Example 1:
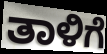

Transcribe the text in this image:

ತಾಳಿಗೆ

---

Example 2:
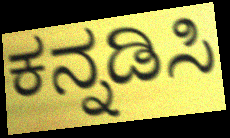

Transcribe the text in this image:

ಕನ್ನಡಿಸಿ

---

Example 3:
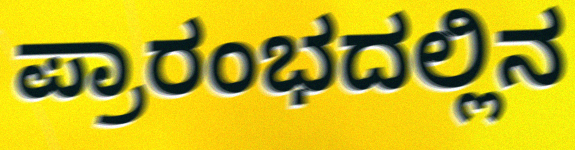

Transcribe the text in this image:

ಪ್ರಾರಂಭದಲ್ಲಿನ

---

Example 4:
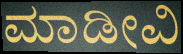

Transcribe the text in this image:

ಮಾಡೀವಿ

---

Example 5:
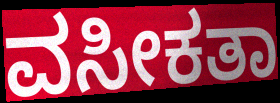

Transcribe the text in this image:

ವಸೀಕತಾ